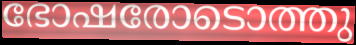
ഭോഷരോടൊത്തു